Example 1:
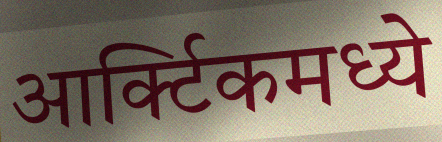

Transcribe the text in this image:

आर्क्टिकमध्ये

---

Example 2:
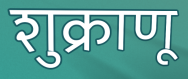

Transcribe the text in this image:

शुक्राणू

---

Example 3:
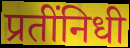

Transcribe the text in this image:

प्रतींनिधी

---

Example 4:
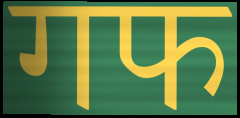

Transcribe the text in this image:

गफ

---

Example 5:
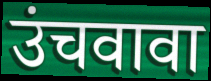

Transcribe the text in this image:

उंचवावा